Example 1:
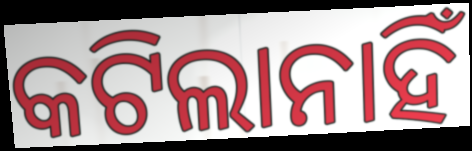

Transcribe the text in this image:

କଟିଲାନାହିଁ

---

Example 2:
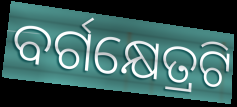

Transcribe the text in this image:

ବର୍ଗକ୍ଷେତ୍ରଟି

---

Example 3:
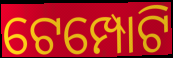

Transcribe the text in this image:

ଟେମ୍ପୋଟି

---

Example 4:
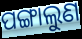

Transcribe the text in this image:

ପଙ୍ଗାଲୁଣ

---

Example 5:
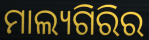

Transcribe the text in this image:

ମାଲ୍ୟଗିରିର